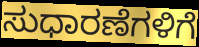
ಸುಧಾರಣೆಗಳಿಗೆ